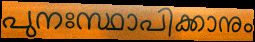
പുനഃസ്ഥാപിക്കാനും